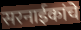
सरनाईकांचे